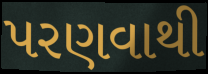
પરણવાથી